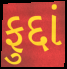
ફુદ્દાં